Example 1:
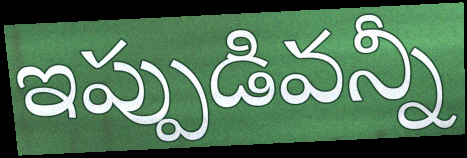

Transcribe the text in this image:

ఇప్పుడివన్నీ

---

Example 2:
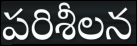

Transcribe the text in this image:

పరిశీలన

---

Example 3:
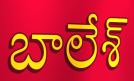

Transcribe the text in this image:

బాలేశ్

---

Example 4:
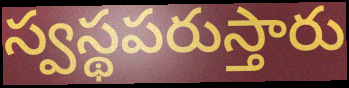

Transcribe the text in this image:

స్వస్థపరుస్తారు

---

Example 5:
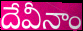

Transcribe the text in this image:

దేవీనాం